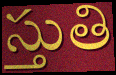
స్తుతి